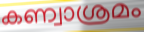
കണ്വാശ്രമം